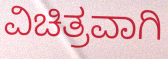
ವಿಚಿತ್ರವಾಗಿ